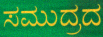
ಸಮುದ್ರದ